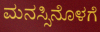
ಮನಸ್ಸಿನೊಳಗೆ